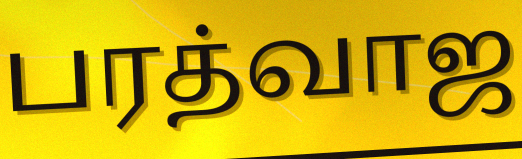
பரத்வாஜ